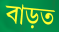
বাড়ত